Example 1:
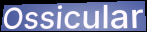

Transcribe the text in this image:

Ossicular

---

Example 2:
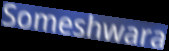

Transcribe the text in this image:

Someshwara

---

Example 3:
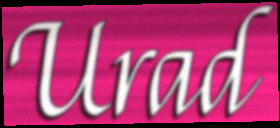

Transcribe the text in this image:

Urad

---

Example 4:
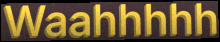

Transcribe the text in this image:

Waahhhhh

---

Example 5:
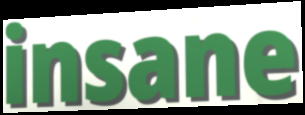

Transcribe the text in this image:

insane